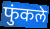
फुंकले